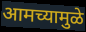
आमच्यामुळे